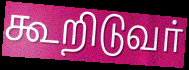
கூறிடுவர்